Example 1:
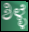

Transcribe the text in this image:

ಶಿಳ್ಳೆ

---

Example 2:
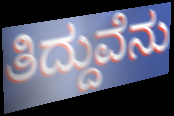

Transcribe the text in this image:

ತಿದ್ದುವೆನು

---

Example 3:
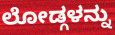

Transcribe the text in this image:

ಲೋಡ್ಗಳನ್ನು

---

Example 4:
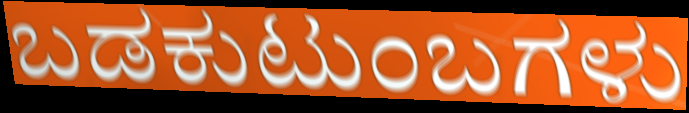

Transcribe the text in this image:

ಬಡಕುಟುಂಬಗಳು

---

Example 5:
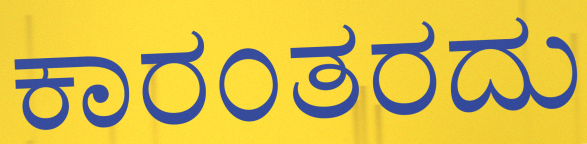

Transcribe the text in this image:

ಕಾರಂತರದು